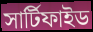
সার্টিফাইড